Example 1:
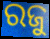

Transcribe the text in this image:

ରଜୁ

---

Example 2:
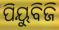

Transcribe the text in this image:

ପିୟୁବିଜି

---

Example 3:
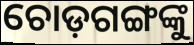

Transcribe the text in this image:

ଚୋଡ଼ଗଙ୍ଗଙ୍କୁ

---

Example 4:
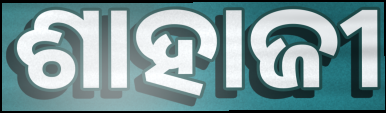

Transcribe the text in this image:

ଶାହାଜୀ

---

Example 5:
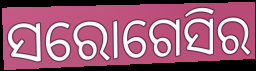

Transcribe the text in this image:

ସରୋଗେସିର